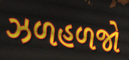
ઝળહળજો